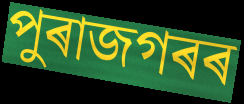
পুৰাজগৰৰ